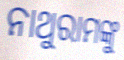
ନାଥୁରାମଙ୍କୁ